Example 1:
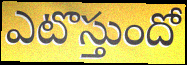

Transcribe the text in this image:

ఎటొస్తుందో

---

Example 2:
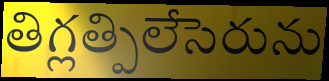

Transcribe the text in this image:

తిగ్లత్పిలేసెరును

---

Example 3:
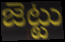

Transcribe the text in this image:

జెట్టు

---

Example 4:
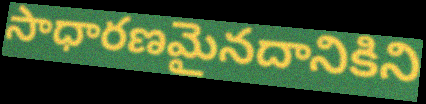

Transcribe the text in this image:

సాధారణమైనదానికిని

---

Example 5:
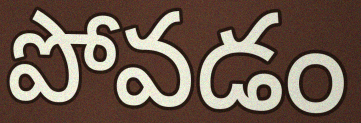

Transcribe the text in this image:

పోవడం